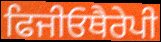
ਫਿਜੀਓਥੈਰੇਪੀ